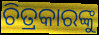
ଚିତ୍ରକାରଙ୍କୁ